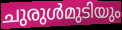
ചുരുൾമുടിയും